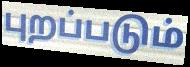
புறப்படும்